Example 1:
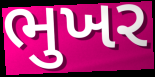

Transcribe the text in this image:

ભુખર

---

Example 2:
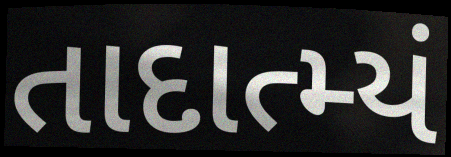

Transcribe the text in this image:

તાદાત્મ્યં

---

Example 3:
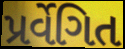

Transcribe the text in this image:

પ્રર્વેગિત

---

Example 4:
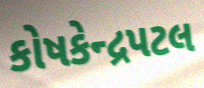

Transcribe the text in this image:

કોષકેન્દ્રપટલ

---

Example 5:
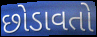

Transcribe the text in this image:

છોડાવતો